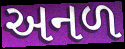
અનળ